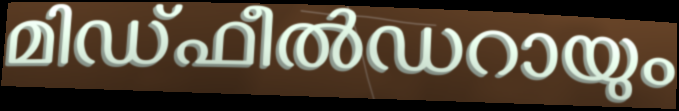
മിഡ്ഫീൽഡറായും